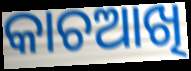
କାଚଆଖି